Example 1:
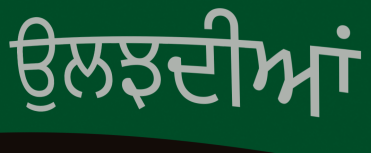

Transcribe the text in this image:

ਉਲਝਦੀਆਂ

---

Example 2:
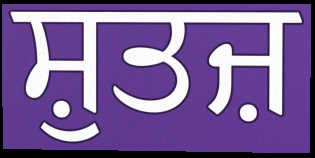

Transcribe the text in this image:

ਸ਼ੁਤਜ਼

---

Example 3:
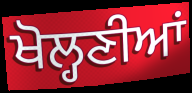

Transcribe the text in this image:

ਖੋਲ੍ਹਣੀਆਂ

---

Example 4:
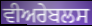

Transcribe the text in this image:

ਵੀਅਰੇਬਲਸ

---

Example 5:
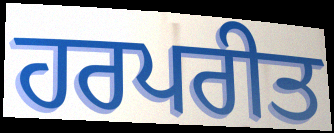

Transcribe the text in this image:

ਹਰਪਰੀਤ